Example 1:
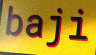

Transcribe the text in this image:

baji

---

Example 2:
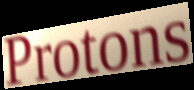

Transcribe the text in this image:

Protons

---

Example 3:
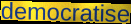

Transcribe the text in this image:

democratise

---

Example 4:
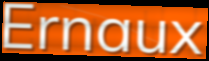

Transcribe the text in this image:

Ernaux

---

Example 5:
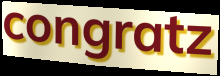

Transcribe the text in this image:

congratz